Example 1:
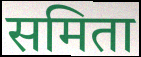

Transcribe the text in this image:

समिता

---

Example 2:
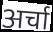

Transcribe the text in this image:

अर्चा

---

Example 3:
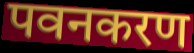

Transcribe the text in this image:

पवनकरण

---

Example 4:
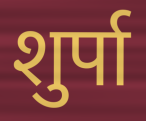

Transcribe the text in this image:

शुर्पा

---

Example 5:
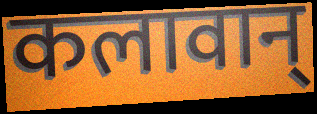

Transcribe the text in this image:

कलावान्